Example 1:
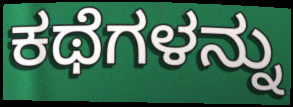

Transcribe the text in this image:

ಕಥೆಗಳನ್ನು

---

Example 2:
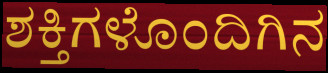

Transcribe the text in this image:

ಶಕ್ತಿಗಳೊಂದಿಗಿನ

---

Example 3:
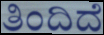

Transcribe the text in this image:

ತಿಂದಿದೆ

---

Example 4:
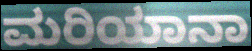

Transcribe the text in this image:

ಮರಿಯಾನಾ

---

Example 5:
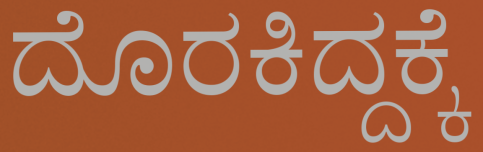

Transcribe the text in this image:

ದೊರಕಿದ್ದಕ್ಕೆ